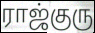
ராஜ்குரு